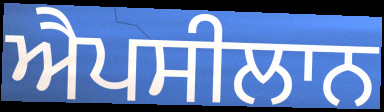
ਐਪਸੀਲਾਨ